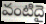
వంటిదై